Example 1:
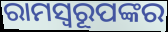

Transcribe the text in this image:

ରାମସ୍ୱରୂପଙ୍କର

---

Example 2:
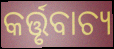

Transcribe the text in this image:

କର୍ତ୍ତୃବାଚ୍ୟ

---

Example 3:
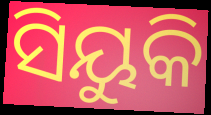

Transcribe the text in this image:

ସିୟୁକି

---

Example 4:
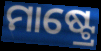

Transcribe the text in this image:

ମାଷ୍ଟ୍ରେ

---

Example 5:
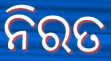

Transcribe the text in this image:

ନିରତ